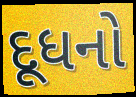
દૂધનો